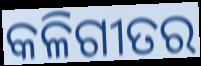
କଳିଗୀତର